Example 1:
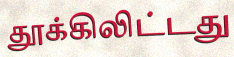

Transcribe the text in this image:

தூக்கிலிட்டது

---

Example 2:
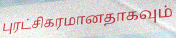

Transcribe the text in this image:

புரட்சிகரமானதாகவும்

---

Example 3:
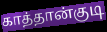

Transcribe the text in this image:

காத்தான்குடி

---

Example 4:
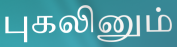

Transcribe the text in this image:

புகலினும்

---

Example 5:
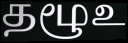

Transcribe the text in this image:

தழூஉ